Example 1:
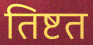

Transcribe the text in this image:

तिष्टत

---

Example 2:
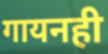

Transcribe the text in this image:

गायनही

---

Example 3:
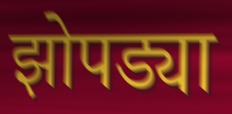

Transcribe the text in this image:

झोपड्या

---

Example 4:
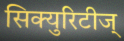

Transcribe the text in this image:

सिक्युरिटीज्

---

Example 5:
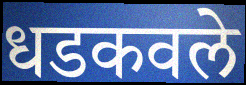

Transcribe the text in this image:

धडकवले